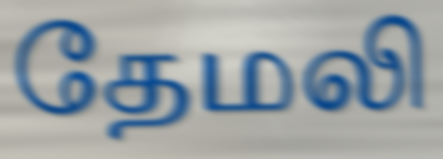
தேமலி